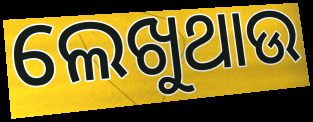
ଲେଖୁଥାଉ